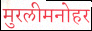
मुरलीमनोहर